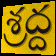
శ్రద్ద